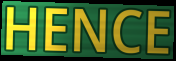
HENCE